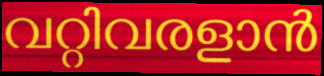
വറ്റിവരളാൻ